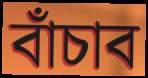
বাঁচাব